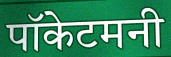
पॉकेटमनी